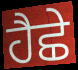
ਹੈਛੇ